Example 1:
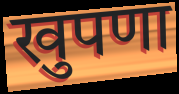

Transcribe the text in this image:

खुपणा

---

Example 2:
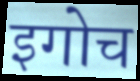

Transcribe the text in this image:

इगोच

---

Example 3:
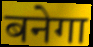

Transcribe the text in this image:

बनेगा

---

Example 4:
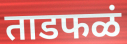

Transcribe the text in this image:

ताडफळं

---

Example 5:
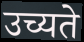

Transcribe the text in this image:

उच्यते